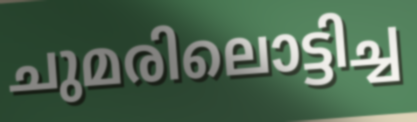
ചുമരിലൊട്ടിച്ച